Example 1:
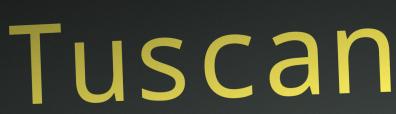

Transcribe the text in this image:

Tuscan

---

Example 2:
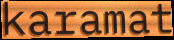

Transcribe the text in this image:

karamat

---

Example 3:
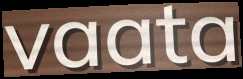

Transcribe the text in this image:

vaata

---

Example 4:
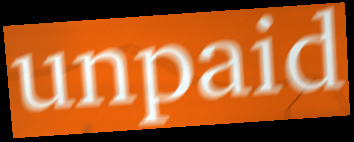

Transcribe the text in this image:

unpaid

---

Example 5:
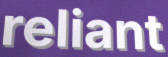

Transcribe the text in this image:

reliant